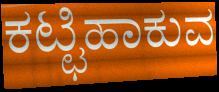
ಕಟ್ಟಿಹಾಕುವ